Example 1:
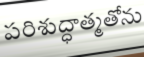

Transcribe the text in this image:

పరిశుద్ధాత్మతోను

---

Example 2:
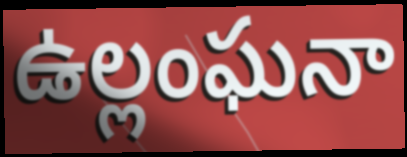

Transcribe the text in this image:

ఉల్లంఘనా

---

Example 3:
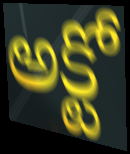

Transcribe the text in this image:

అక్టో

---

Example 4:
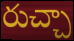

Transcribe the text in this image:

రుచ్చా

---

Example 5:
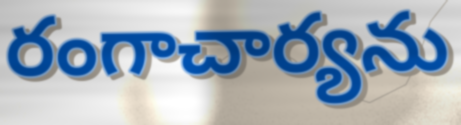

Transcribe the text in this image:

రంగాచార్యను